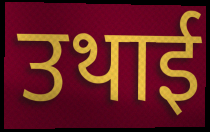
उथाई